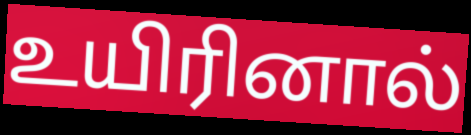
உயிரினால்